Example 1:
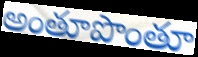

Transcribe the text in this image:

అంతూపొంతూ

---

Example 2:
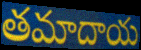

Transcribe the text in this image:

తమాదాయ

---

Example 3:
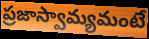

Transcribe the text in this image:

ప్రజాస్వామ్యమంటే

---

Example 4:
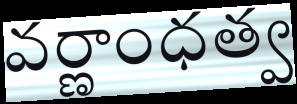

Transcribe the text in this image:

వర్ణాంధత్వ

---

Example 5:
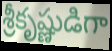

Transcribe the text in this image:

శ్రీకృష్ణుడిగా